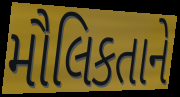
મૌલિકતાને